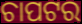
ଚାପଟର